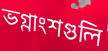
ভগ্নাংশগুলি